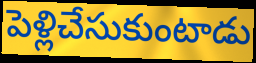
పెళ్లిచేసుకుంటాడు